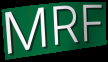
MRF